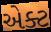
એક્ટ